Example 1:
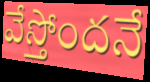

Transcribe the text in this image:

వేస్తోందనే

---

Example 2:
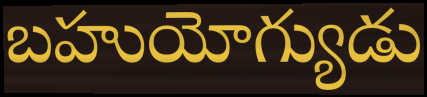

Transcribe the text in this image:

బహుయోగ్యుడు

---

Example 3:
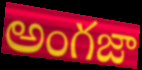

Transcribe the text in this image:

అంగజా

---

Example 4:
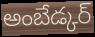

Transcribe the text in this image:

అంబేడ్కర్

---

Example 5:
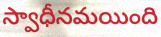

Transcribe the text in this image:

స్వాధీనమయింది